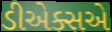
ડીએક્સએ